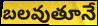
బలవుతూనే